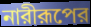
নারীরূপের